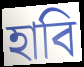
হাবি